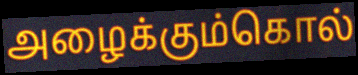
அழைக்கும்கொல்